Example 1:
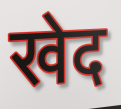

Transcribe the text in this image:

खेद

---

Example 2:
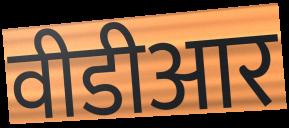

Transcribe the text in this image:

वीडीआर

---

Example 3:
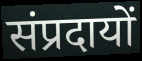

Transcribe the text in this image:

संप्रदायों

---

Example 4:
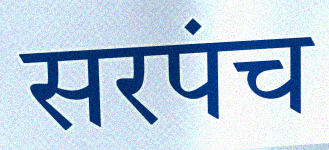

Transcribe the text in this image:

सरपंच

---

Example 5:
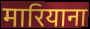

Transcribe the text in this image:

मारियाना